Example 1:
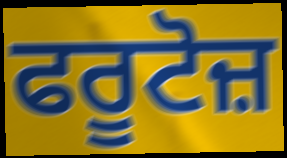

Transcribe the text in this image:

ਫਰੂਟੋਜ਼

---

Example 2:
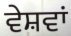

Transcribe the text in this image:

ਵੇਸ਼ਵਾਂ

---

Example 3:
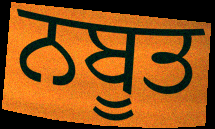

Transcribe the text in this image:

ਨਬੂਤ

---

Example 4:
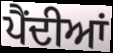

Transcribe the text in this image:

ਪੈਂਦੀਆਂ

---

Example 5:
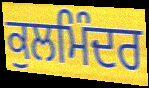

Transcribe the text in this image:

ਕੁਲਮਿੰਦਰ